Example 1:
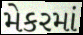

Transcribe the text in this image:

મેકરમાં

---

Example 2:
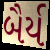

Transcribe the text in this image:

બૈર્ય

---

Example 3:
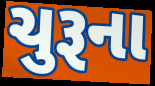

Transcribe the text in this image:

ચુરૂના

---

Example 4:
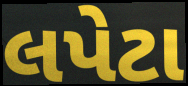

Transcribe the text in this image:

લપેટા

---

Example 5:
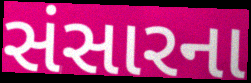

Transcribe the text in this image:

સંસારના